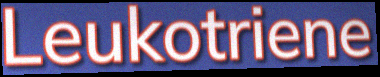
Leukotriene